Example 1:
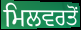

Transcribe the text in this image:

ਮਿਲਵਰਤੋਂ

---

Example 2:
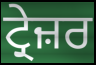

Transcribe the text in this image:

ਟ੍ਰੇਜ਼ਰ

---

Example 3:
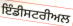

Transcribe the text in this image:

ਇੰਡੀਸਟਰੀਅਲ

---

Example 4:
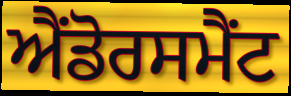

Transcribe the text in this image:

ਐਂਡੋਰਸਮੈਂਟ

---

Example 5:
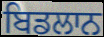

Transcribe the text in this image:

ਬਿਡਲਾਨ